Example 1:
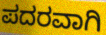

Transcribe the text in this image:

ಪದರವಾಗಿ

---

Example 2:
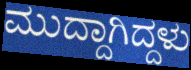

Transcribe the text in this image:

ಮುದ್ದಾಗಿದ್ದಳು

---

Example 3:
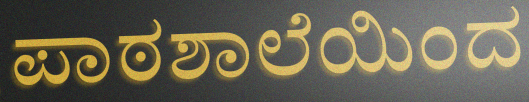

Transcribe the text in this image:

ಪಾಠಶಾಲೆಯಿಂದ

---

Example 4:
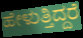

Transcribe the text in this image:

ಹೇಳುತ್ತಿದ್ದರೆ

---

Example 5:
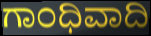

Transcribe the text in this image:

ಗಾಂಧಿವಾದಿ